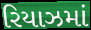
રિયાઝમાં